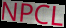
NPCL